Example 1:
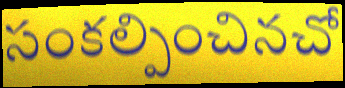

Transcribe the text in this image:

సంకల్పించినచో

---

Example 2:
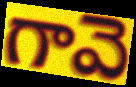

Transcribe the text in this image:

గావె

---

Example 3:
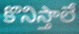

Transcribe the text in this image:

కొనిస్తాలే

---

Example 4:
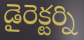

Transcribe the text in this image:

డైరెక్టర్ని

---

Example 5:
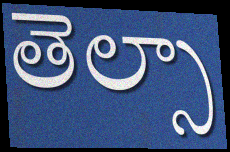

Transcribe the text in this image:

తెల్సా